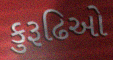
કુરૂઢિઓ